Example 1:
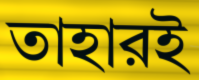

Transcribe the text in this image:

তাহারই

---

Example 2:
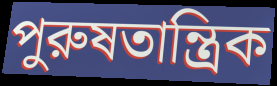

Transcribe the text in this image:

পুরুষতান্ত্রিক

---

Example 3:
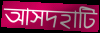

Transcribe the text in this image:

আসদহাটি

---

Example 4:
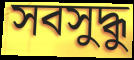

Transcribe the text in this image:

সবসুদ্ধু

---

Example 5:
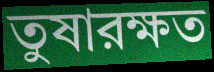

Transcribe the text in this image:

তুষারক্ষত